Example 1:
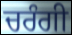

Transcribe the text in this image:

ਚਰੰਗੀ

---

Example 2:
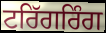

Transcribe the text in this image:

ਟਰਿੱਗਰਿੰਗ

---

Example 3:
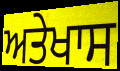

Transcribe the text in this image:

ਅਤੇਖਾਸ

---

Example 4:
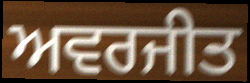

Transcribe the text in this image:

ਅਵਰਜੀਤ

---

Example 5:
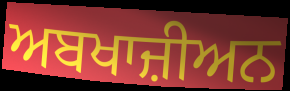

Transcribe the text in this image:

ਅਬਖਾਜ਼ੀਅਨ